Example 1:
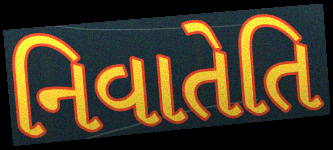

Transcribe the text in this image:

નિવાતેતિ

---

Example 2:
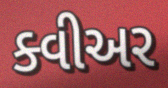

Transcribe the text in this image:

ક્વીઅર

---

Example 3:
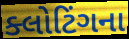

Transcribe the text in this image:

ક્લોટિંગના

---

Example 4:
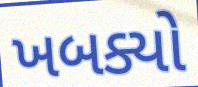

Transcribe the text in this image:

ખબક્યો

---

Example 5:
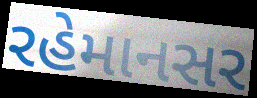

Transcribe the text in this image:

રહેમાનસર